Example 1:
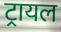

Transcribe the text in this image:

ट्रायल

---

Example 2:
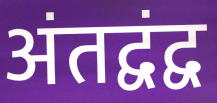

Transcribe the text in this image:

अंतद्वंद्व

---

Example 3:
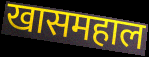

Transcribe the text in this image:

खासमहाल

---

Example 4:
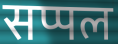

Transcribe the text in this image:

सप्पल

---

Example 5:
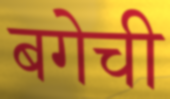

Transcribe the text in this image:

बगेची